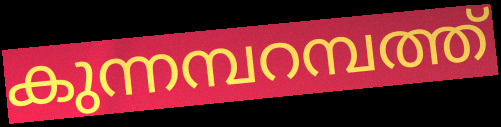
കുന്നമ്പറമ്പത്ത്